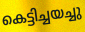
കെട്ടിച്ചയച്ചു